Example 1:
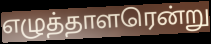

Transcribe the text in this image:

எழுத்தாளரென்று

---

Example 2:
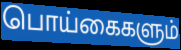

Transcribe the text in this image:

பொய்கைகளும்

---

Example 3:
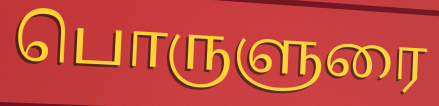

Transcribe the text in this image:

பொருளுரை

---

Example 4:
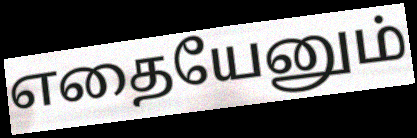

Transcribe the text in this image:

எதையேனும்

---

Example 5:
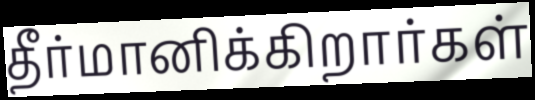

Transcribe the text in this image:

தீர்மானிக்கிறார்கள்